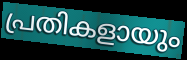
പ്രതികളായും